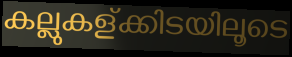
കല്ലുകള്ക്കിടയിലൂടെ